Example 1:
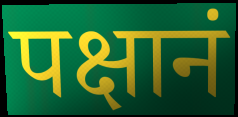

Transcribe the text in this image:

पक्षानं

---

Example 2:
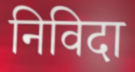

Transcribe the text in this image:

निविदा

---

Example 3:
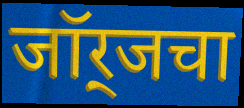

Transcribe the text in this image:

जॉर्जचा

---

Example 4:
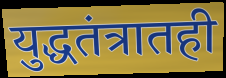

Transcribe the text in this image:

युद्धतंत्रातही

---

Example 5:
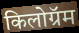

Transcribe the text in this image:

किलोग्रॅम